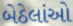
બેઠેલાંઓ